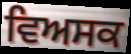
ਵਿਅਸਕ